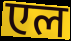
एल